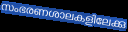
സംഭരണശാലകളിലേക്കു